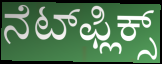
ನೆಟ್‌ಫ್ಲಿಕ್ಸ್